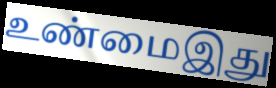
உண்மைஇது